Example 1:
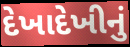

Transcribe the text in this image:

દેખાદેખીનું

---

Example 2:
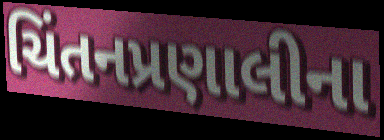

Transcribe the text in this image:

ચિંતનપ્રણાલીના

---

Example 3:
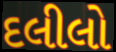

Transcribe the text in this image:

દલીલો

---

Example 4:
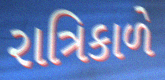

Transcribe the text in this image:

રાત્રિકાળે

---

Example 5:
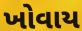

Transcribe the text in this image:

ખોવાય